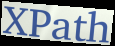
XPath